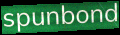
spunbond